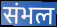
संभल